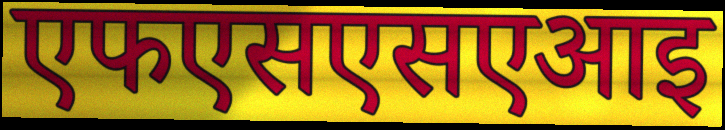
एफएसएसएआइ